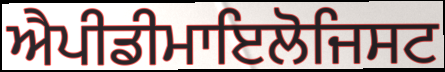
ਐਪੀਡੀਮਾਇਲੋਜਿਸਟ